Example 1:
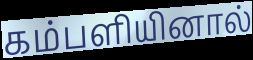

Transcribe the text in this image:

கம்பளியினால்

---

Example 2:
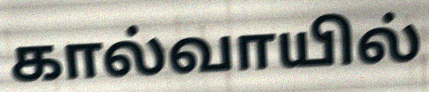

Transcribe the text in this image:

கால்வாயில்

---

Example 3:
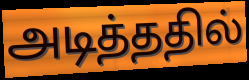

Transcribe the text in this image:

அடித்ததில்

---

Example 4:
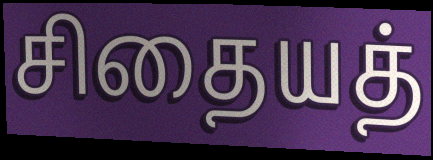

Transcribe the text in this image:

சிதையத்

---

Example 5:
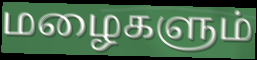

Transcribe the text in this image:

மழைகளும்